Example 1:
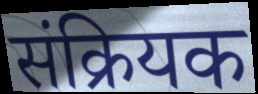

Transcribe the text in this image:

संक्रियक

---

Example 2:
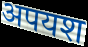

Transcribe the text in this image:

अपयश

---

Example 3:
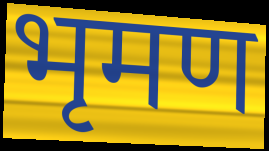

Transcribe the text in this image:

भृमण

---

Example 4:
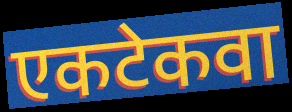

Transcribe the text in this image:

एकटेकवा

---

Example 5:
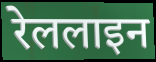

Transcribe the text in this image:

रेललाइन